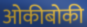
ओकीबोकी